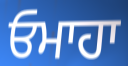
ਓਮਾਹਾ